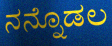
ನನ್ನೊಡಲ